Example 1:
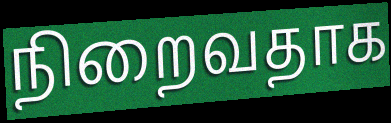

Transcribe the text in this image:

நிறைவதாக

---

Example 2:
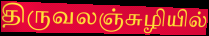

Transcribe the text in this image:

திருவலஞ்சுழியில்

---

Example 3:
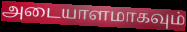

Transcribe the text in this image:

அடையாளமாகவும்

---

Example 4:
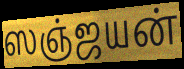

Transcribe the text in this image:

ஸஞ்ஜயன்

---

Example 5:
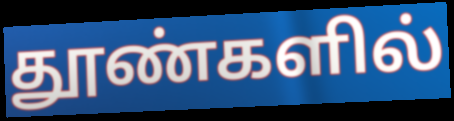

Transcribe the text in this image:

தூண்களில்